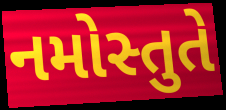
નમોસ્તુતે